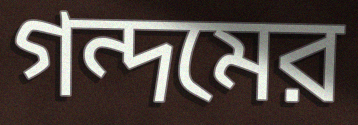
গন্দমের